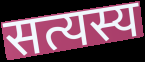
सत्यस्य